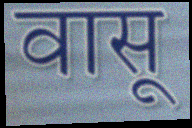
वासू